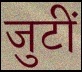
जुटीं